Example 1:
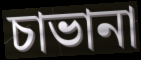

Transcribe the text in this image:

চাভানা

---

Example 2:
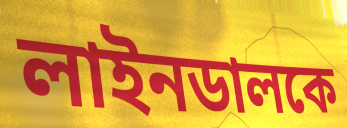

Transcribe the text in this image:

লাইনডালকে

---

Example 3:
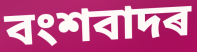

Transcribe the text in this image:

বংশবাদৰ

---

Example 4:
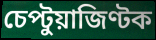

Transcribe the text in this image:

চেপ্টুয়াজিণ্টক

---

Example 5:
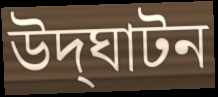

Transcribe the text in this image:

উদ্‌ঘাটন